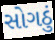
સોગઠું